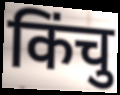
किंचु